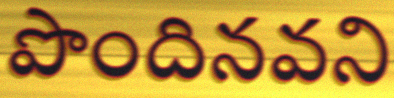
పొందినవని